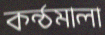
কন্ঠমালা